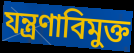
যন্ত্রণাবিমুক্ত